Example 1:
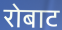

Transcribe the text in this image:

रोबाट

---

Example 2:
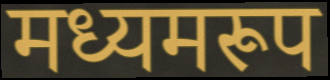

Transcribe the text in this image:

मध्यमरूप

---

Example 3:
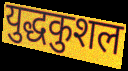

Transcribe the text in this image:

युद्धकुशल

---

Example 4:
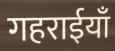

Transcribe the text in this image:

गहराईयाँ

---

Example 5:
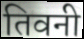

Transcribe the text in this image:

तिवनी